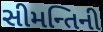
સીમન્તિની